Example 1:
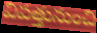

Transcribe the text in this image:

విపత్తునుంచి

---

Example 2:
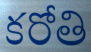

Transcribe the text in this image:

కరోతి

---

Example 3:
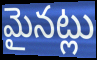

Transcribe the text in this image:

మైనట్లు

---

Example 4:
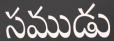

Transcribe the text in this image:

సముడు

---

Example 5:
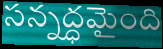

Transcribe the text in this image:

సన్నద్ధమైంది